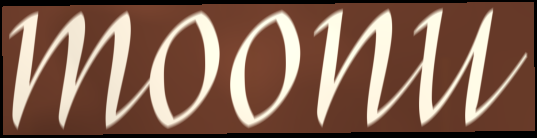
moonu